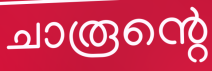
ചാരൂന്റെ